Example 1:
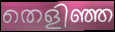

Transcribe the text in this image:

തെളിഞ്ഞ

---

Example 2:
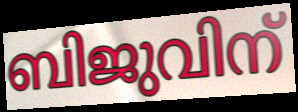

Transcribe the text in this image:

ബിജുവിന്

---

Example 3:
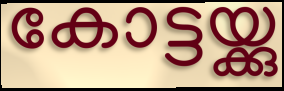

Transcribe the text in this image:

കോട്ടയ്ക്കു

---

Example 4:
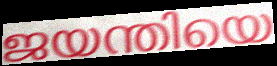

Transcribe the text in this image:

ജയന്തിയെ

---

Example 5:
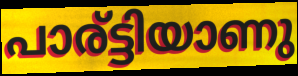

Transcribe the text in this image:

പാര്ട്ടിയാണു